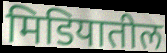
मिडियातील